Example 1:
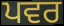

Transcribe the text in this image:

ਪਵਰ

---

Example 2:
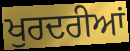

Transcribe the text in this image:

ਖੁਰਦਰੀਆਂ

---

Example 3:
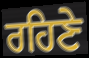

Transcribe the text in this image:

ਰਹਿਣੇ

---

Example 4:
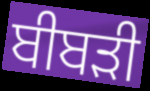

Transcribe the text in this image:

ਬੀਬੜੀ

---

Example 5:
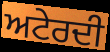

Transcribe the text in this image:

ਅਟੇਰਦੀ